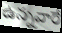
ఉన్నవారే